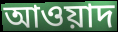
আওয়াদ